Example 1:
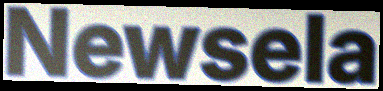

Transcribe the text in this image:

Newsela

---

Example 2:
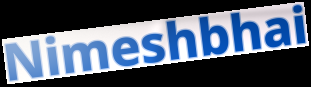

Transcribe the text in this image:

Nimeshbhai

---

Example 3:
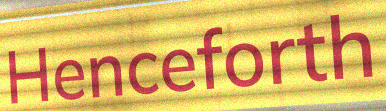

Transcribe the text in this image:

Henceforth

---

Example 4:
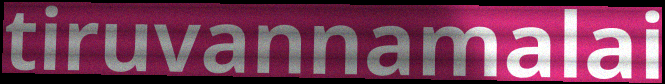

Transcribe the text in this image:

tiruvannamalai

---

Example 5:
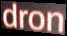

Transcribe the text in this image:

dron